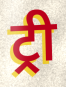
ट्री